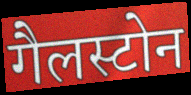
गैलस्टोन